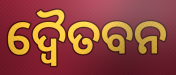
ଦ୍ବୈତବନ